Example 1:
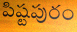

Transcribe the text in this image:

పిష్టపురం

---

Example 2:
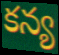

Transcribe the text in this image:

కన్య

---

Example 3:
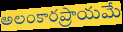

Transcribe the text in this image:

అలంకారప్రాయమే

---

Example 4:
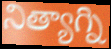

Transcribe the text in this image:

నిత్యాగ్ని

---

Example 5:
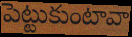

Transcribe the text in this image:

పెట్టుకుంటావా